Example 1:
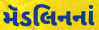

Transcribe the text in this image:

મૅડલિનનાં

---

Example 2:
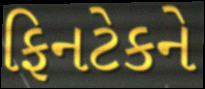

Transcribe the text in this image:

ફિનટેકને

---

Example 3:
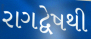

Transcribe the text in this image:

રાગદ્વેષથી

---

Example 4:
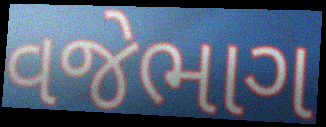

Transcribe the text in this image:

વજેભાગ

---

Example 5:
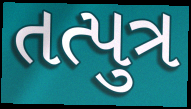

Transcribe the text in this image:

તત્પુત્ર